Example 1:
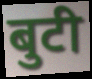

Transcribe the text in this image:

बुटी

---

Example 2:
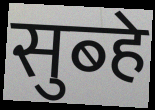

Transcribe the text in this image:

सुब्हे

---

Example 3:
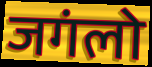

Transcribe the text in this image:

जगंलो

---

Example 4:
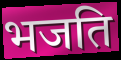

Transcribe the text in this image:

भजति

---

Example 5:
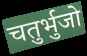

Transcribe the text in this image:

चतुर्भुजो